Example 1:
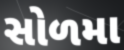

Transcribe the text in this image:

સોળમા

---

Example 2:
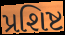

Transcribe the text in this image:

પ્રશિષ્ટ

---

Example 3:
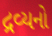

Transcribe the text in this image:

દ્રવ્યનો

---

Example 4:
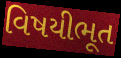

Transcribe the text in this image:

વિષયીભૂત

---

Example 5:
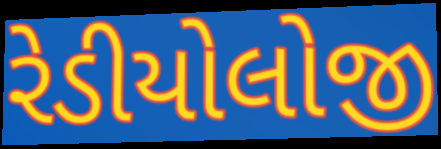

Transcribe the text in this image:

રેડીયોલોજી